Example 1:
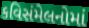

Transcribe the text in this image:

કવિસંમેલનોમાં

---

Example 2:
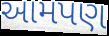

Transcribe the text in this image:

આમપણ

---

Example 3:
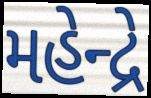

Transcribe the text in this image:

મહેન્દ્રે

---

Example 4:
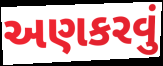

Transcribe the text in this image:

અણકરવું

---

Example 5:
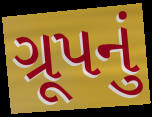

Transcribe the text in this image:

ગ્રૂપનું